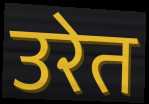
उरेत